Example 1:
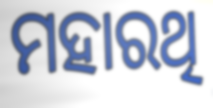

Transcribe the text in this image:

ମହାରଥି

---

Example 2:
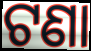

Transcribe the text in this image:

ଟଣା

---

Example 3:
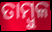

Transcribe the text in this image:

ତାମ୍ୱୁଳ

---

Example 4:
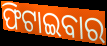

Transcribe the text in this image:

ଫିଟାଇବାର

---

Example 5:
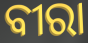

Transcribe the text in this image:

ବୀରା